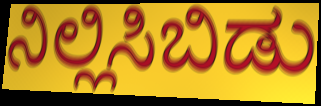
ನಿಲ್ಲಿಸಿಬಿಡು